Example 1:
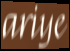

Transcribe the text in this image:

ariye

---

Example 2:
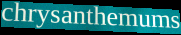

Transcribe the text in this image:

chrysanthemums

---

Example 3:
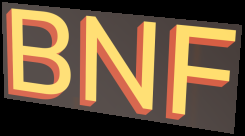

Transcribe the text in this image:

BNF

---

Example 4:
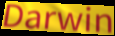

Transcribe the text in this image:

Darwin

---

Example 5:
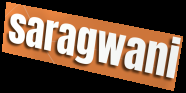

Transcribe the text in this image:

saragwani